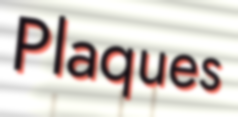
Plaques